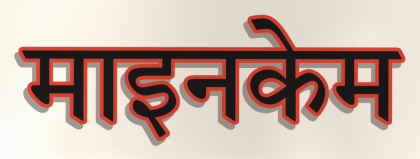
माइनकेम